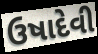
ઉષાદેવી